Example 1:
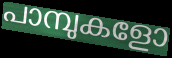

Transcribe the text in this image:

പാമ്പുകളോ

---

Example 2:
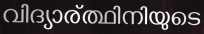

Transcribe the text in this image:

വിദ്യാര്ത്ഥിനിയുടെ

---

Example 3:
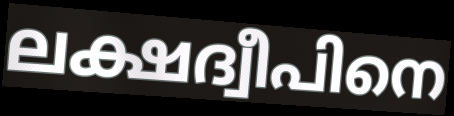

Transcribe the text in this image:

ലക്ഷദ്വീപിനെ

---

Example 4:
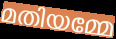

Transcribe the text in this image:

മതിയമ്മേ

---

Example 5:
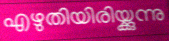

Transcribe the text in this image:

എഴുതിയിരിയ്ക്കുന്നു